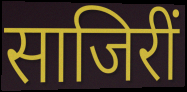
साजिरीं